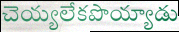
చెయ్యలేకపొయ్యాడు